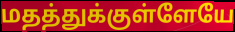
மதத்துக்குள்ளேயே